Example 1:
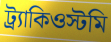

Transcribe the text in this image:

ট্র্যাকিওস্টমি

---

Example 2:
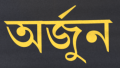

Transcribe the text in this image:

অর্জুন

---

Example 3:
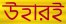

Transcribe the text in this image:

উহারই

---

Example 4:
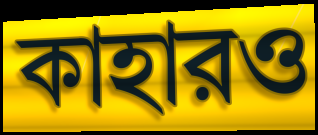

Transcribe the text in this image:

কাহারও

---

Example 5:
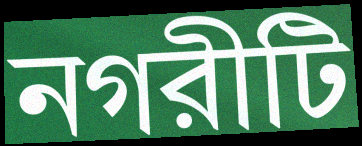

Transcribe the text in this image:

নগরীটি